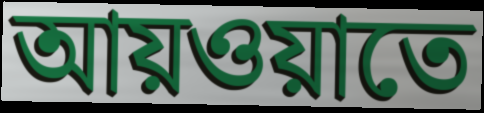
আয়ওয়াতে